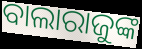
ବାଲାରାଜୁଙ୍କ